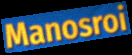
Manosroi